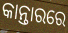
କାନ୍ତାରରେ